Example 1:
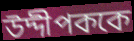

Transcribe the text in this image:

উদ্দীপককে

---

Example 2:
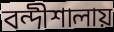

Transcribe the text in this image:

বন্দীশালায়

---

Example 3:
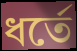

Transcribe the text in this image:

ধর্তে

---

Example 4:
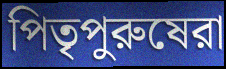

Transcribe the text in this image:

পিতৃপুরুষেরা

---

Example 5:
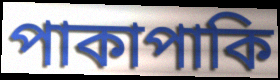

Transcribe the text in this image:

পাকাপাকি